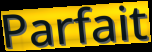
Parfait